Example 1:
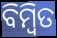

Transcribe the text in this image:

ବିମ୍ବିତ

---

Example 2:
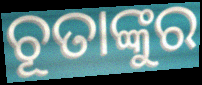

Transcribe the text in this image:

ଚୂତାଙ୍କୁର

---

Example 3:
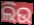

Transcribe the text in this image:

ଲିଉ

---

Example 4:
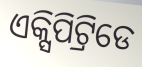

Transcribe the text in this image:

ଏକ୍ସିପିଟ୍ରିଡେ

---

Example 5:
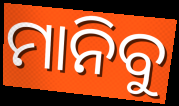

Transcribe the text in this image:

ମାନିବୁ